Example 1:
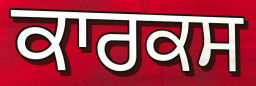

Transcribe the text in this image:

ਕਾਰਕਸ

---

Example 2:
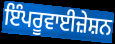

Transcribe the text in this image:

ਇੰਪਰੂਵਾਈਜ਼ੇਸ਼ਨ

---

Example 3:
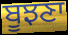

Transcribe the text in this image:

ਬੂਝਣਾ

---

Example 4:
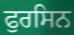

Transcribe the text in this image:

ਫੁਰਸਿਨ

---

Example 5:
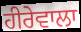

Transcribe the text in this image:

ਹੀਰੇਵਾਲਾ